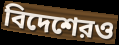
বিদেশেরও